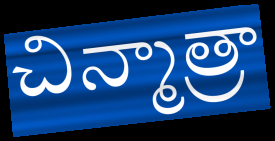
చిన్మాత్రా